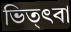
ভিত্ৎবা